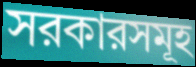
সরকারসমূহ